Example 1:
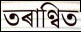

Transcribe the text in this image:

তৰাণ্বিত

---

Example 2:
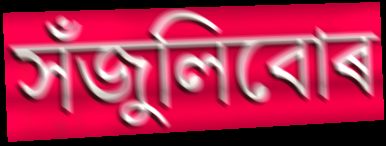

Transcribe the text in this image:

সঁজুলিবোৰ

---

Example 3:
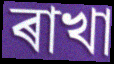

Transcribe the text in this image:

ৰাখা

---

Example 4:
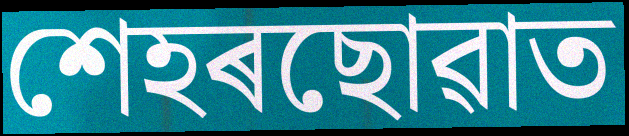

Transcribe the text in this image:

শেহৰছোৱাত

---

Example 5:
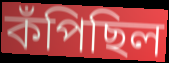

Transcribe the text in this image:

কঁপিছিল